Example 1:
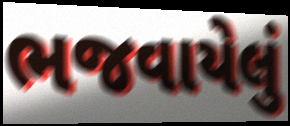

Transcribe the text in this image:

ભજવાયેલું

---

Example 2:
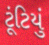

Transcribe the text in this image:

ટૂંટિયું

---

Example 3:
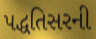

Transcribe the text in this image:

પદ્ધતિસરની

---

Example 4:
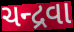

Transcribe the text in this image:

ચન્દ્રવા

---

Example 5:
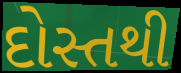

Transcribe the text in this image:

દોસ્તથી